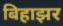
बिहाझर